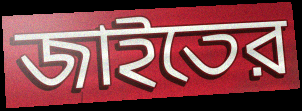
জাইতের